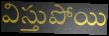
విస్తుపోయి